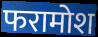
फरामोश